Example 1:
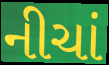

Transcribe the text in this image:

નીચાં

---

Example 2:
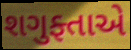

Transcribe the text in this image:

શગુફ્તાએ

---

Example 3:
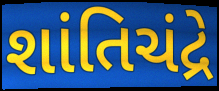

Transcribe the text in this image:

શાંતિચંદ્રે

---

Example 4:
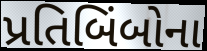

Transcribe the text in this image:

પ્રતિબિંબોના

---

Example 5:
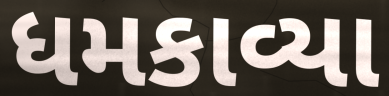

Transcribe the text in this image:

ધમકાવ્યા